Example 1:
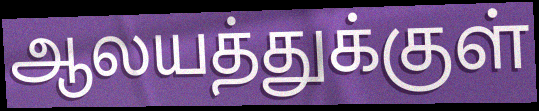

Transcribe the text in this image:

ஆலயத்துக்குள்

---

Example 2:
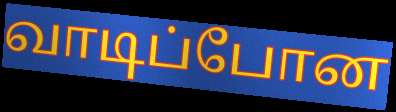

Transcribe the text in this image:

வாடிப்போன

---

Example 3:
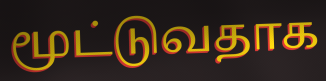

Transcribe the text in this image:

மூட்டுவதாக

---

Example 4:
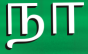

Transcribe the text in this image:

நா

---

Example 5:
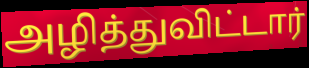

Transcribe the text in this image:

அழித்துவிட்டார்